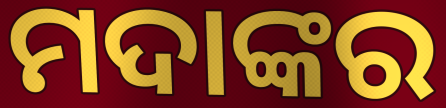
ମଦାଙ୍କର